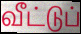
வீட்டுப்